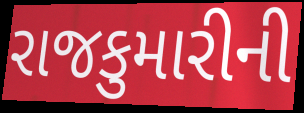
રાજકુમારીની